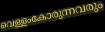
വെള്ളംകോരുന്നവരും